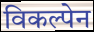
विकल्पेन